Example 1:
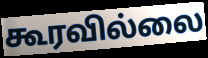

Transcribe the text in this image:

கூரவில்லை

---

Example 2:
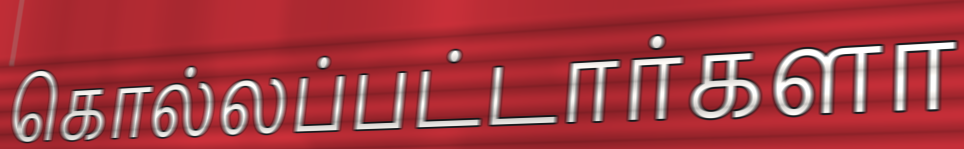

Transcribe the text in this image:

கொல்லப்பட்டார்களா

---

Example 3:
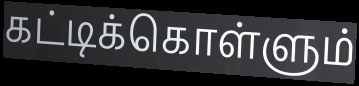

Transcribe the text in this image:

கட்டிக்கொள்ளும்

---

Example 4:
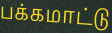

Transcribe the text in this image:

பக்கமாட்டு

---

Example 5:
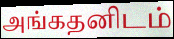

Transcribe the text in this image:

அங்கதனிடம்